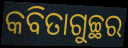
କବିତାଗୁଚ୍ଛର